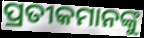
ପ୍ରତୀକମାନଙ୍କୁ